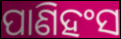
ପାଣିହଂସ